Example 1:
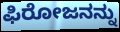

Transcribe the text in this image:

ಫಿರೋಜನನ್ನು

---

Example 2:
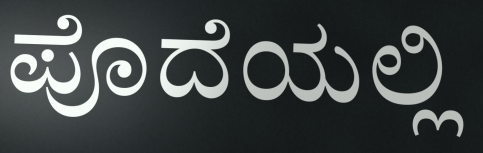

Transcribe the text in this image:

ಪೊದೆಯಲ್ಲಿ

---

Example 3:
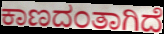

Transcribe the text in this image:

ಕಾಣದಂತಾಗಿದೆ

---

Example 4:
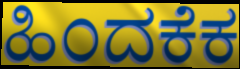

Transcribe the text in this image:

ಹಿಂದಕೆಕ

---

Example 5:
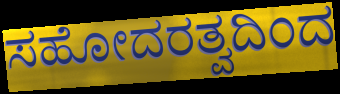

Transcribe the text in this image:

ಸಹೋದರತ್ವದಿಂದ